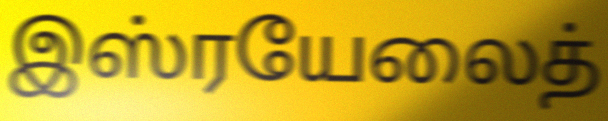
இஸ்ரயேலைத்